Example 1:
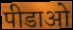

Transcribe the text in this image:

पीडाओ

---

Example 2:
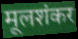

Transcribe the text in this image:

मूलशंकर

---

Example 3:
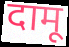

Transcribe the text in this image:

दामू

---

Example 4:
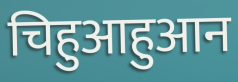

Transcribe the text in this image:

चिहुआहुआन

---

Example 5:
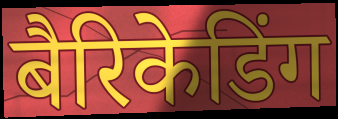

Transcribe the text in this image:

बैरिकेडिंग